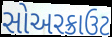
સોઅરક્રાઉટ